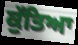
ਕੁੱਤਿਆ